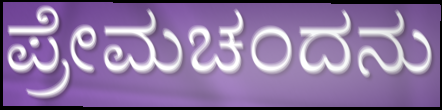
ಪ್ರೇಮಚಂದನು